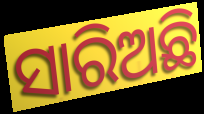
ସାରିଅଛି